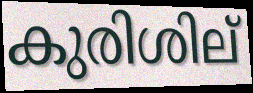
കുരിശില്